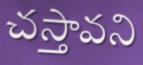
చస్తావని